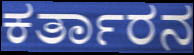
ಕರ್ತಾರನ